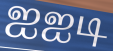
ஐஐடி